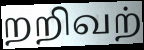
றறிவற்